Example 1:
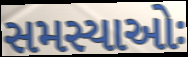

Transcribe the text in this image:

સમસ્યાઓઃ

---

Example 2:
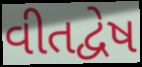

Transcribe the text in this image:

વીતદ્વેષ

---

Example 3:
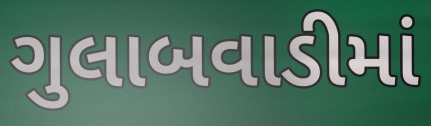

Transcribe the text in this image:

ગુલાબવાડીમાં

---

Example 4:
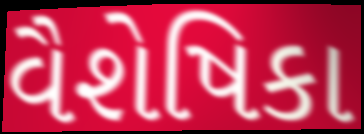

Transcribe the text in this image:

વૈશેષિકા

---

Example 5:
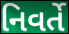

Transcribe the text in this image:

નિવર્તે